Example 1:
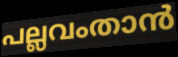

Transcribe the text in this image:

പല്ലവംതാൻ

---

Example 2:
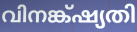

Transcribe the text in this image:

വിനങ്ക്ഷ്യതി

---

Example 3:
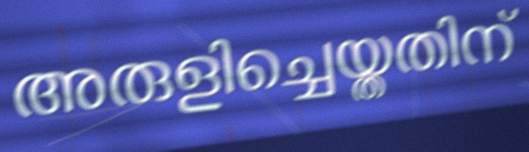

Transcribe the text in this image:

അരുളിച്ചെയ്തതിന്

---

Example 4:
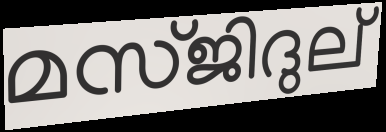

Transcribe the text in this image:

മസ്ജിദുല്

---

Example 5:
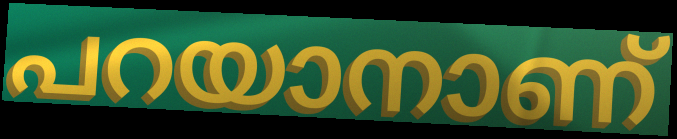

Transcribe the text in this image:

പറയാനാണ്